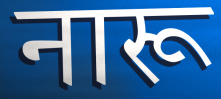
नारू